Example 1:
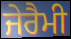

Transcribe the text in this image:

ਜੇਰੈਮੀ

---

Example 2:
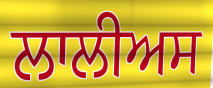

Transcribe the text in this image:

ਲਾਲੀਅਸ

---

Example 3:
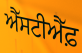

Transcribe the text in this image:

ਐੱਸਟੀਐੱਫ਼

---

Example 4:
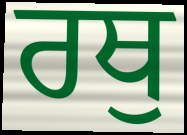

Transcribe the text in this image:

ਰਥੁ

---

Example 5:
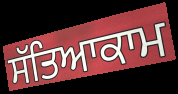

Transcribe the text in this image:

ਸੱਤਿਆਕਾਮ